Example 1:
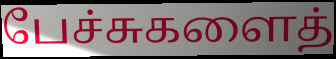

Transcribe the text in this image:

பேச்சுகளைத்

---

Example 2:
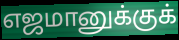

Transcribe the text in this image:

எஜமானுக்குக்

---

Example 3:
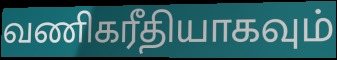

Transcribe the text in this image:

வணிகரீதியாகவும்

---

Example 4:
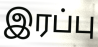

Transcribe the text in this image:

இரப்பு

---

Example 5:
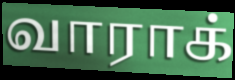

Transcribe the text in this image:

வாராக்